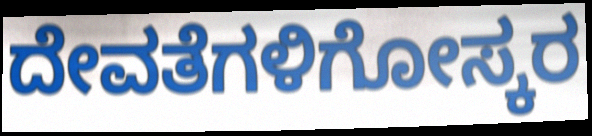
ದೇವತೆಗಳಿಗೋಸ್ಕರ